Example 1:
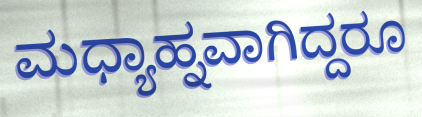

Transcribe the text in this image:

ಮಧ್ಯಾಹ್ನವಾಗಿದ್ದರೂ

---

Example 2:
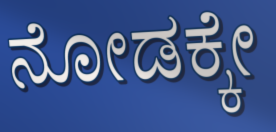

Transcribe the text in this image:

ನೋಡಕ್ಕೇ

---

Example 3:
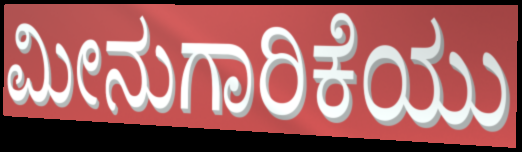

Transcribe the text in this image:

ಮೀನುಗಾರಿಕೆಯು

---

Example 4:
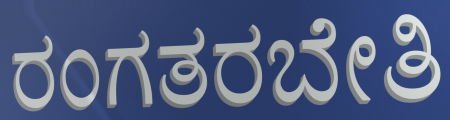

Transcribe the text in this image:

ರಂಗತರಬೇತಿ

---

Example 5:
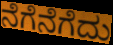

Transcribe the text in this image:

ನೆಗೆನೆಗೆದು